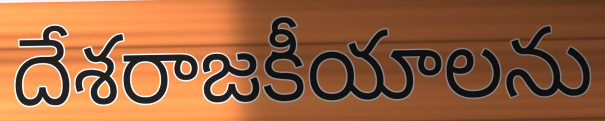
దేశరాజకీయాలను